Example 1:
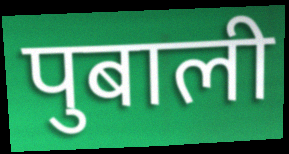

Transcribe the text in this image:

पुबाली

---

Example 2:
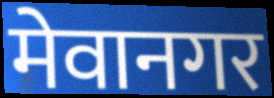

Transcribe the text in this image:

मेवानगर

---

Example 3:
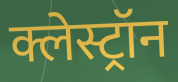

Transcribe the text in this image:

क्लेस्ट्रॉन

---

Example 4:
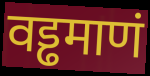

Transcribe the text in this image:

वड्ढमाणं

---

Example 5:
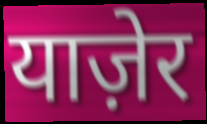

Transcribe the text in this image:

याज़ेर